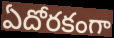
ఏదోరకంగా